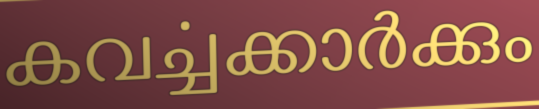
കവൎച്ചക്കാർക്കും